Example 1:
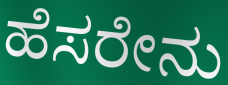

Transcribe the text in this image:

ಹೆಸರೇನು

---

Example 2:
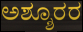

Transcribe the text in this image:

ಅಶ್ಶೂರರ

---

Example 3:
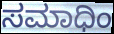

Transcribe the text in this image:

ಸಮಾಧಿಂ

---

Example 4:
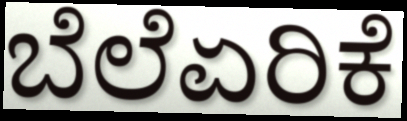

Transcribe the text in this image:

ಬೆಲೆಏರಿಕೆ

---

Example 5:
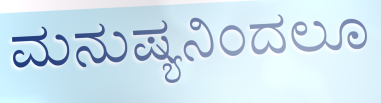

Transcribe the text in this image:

ಮನುಷ್ಯನಿಂದಲೂ